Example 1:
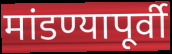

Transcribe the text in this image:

मांडण्यापूर्वी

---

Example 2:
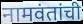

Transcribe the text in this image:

नामवंतांची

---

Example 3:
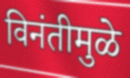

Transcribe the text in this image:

विनंतीमुळे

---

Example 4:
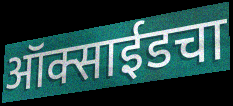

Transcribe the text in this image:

ऑक्साईडचा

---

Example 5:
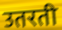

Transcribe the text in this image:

उतरती